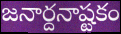
జనార్దనాష్టకం